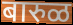
बारुळ